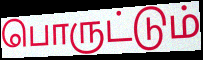
பொருட்டும்